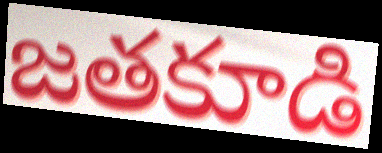
జతకూడి